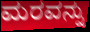
ಮರವನ್ನು